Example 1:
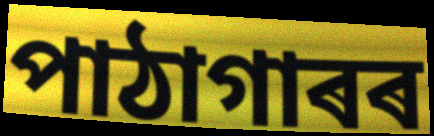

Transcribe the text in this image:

পাঠাগাৰৰ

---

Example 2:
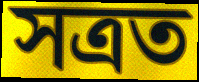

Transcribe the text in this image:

সত্ৰত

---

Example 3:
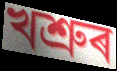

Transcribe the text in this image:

খশ্ৰুৰ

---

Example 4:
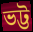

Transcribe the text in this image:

ভট্ট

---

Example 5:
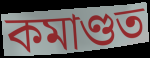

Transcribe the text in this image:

কমাণ্ডত